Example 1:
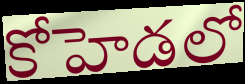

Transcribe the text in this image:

కోహెడలో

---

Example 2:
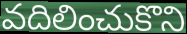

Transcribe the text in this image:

వదిలించుకొని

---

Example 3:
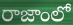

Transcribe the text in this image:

రాజాంలో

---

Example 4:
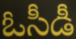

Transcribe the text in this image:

ఓసీడీ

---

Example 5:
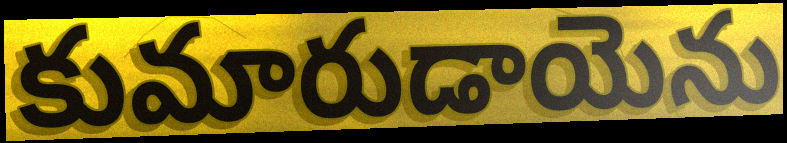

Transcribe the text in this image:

కుమారుడాయెను